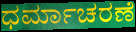
ಧರ್ಮಾಚರಣೆ